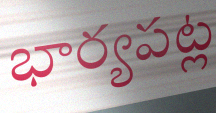
భార్యపట్ల